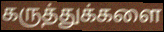
கருத்துக்களை